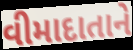
વીમાદાતાને